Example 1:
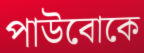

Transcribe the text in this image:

পাউবোকে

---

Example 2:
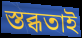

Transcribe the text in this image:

স্তব্ধতাই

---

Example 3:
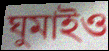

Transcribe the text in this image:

ঘুমাইও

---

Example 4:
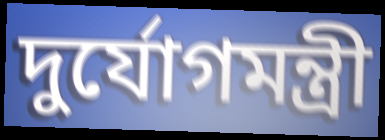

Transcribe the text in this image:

দুর্যোগমন্ত্রী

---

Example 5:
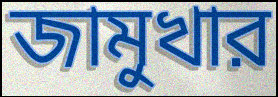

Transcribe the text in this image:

জামুখার